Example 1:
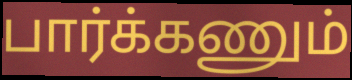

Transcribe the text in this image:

பார்க்கணும்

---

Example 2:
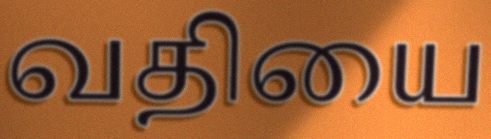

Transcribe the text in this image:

வதியை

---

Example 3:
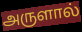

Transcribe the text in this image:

அருளால்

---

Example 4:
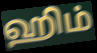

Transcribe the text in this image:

ஹிம்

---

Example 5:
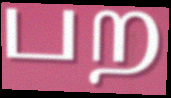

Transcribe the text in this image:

பற